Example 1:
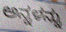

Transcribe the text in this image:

ಅನ್ನಳನ್ನು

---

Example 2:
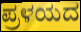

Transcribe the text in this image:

ಪ್ರಳಯದ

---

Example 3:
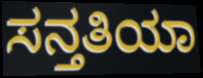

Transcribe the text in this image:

ಸನ್ತತಿಯಾ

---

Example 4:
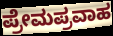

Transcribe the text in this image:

ಪ್ರೇಮಪ್ರವಾಹ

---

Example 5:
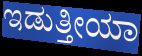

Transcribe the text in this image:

ಇಡುತ್ತೀಯಾ